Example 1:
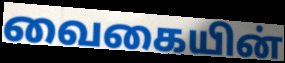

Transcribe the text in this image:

வைகையின்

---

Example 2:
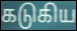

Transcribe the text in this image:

கடுகிய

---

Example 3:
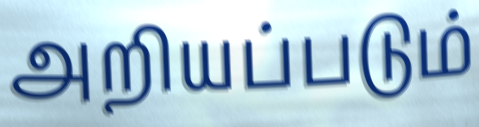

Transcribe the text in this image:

அறியப்படும்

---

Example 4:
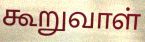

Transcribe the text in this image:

கூறுவாள்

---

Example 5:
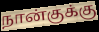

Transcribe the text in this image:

நான்குக்கு